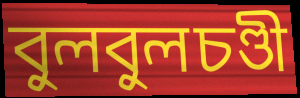
বুলবুলচণ্ডী